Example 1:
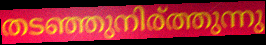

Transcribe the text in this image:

തടഞ്ഞുനിര്ത്തുന്നു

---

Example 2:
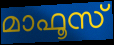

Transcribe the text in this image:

മാഫൂസ്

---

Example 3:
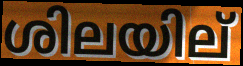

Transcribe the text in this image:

ശിലയില്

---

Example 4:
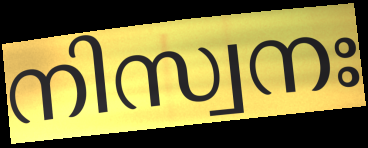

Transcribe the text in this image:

നിസ്വനഃ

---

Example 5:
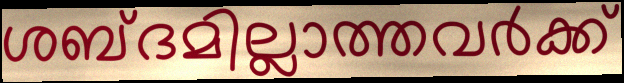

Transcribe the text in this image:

ശബ്ദമില്ലാത്തവർക്ക്